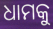
ଧାମକୁ